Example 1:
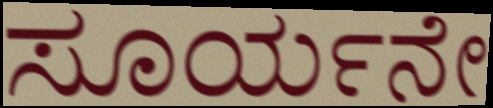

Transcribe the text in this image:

ಸೂರ್ಯನೇ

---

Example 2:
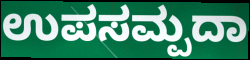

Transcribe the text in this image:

ಉಪಸಮ್ಪದಾ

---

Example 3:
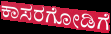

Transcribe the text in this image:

ಕಾಸರಗೋಡಿಗೆ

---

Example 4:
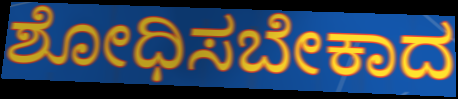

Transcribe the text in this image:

ಶೋಧಿಸಬೇಕಾದ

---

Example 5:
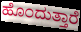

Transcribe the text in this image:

ಹೊಂದುತ್ತಾರೆ